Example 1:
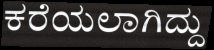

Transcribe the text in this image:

ಕರೆಯಲಾಗಿದ್ದು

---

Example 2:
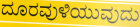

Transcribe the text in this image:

ದೂರವುಳಿಯುವುದು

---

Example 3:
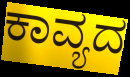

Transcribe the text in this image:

ಕಾವ್ಯದ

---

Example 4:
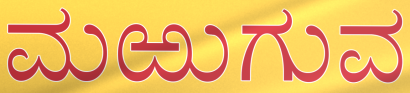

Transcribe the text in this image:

ಮಱುಗುವ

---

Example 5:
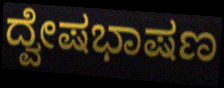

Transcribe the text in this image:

ದ್ವೇಷಭಾಷಣ